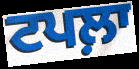
ਟਪਲ਼ਾ